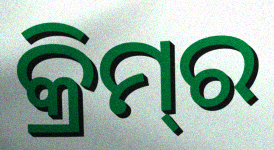
କ୍ରିମ୍‌ର